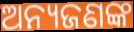
ଅନ୍ୟଜଣଙ୍କ